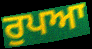
ਰੁਪਆ